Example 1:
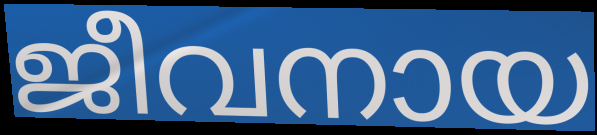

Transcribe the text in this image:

ജീവനായ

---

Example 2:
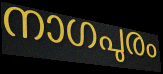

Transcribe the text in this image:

നാഗപുരം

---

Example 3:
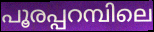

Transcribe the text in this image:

പൂരപ്പറമ്പിലെ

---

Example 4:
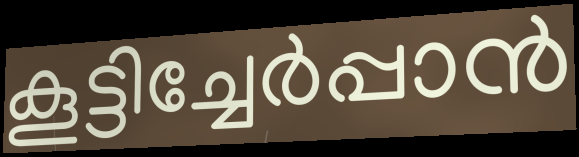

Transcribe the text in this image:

കൂട്ടിച്ചേർപ്പാൻ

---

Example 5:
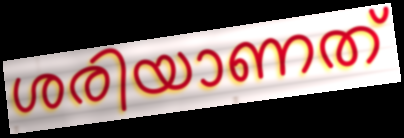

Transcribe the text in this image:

ശരിയാണത്